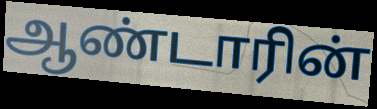
ஆண்டாரின்